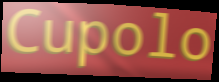
Cupolo